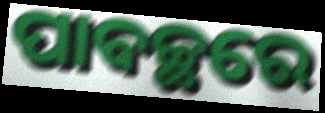
ପାବଚ୍ଛରେ